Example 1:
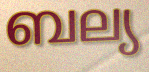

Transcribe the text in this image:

ബല്യ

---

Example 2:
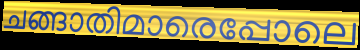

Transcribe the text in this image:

ചങ്ങാതിമാരെപ്പോലെ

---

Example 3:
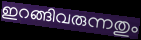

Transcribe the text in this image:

ഇറങ്ങിവരുന്നതും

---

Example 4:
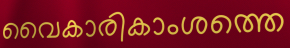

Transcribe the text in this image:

വൈകാരികാംശത്തെ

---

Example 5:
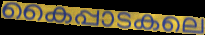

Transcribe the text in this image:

കൈപ്പാടകലെ